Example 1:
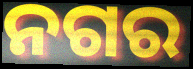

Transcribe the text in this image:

ନଗର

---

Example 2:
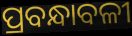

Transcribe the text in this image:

ପ୍ରବନ୍ଧାବଳୀ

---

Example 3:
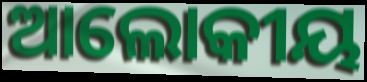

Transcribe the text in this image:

ଆଲୋକୀୟ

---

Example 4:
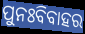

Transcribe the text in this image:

ପୁନଃବିବାହର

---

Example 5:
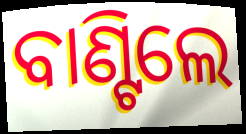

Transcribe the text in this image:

ବାଣ୍ଟିଲେ